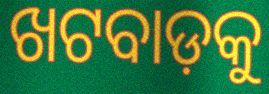
ଖଟବାଡ଼କୁ